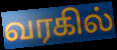
வரகில்